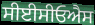
ਸੀਈਸੀਓਐਸ